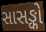
સાસઙ્કો